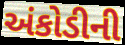
અંકોડીની